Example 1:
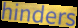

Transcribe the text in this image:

hinders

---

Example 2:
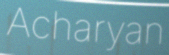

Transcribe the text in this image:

Acharyan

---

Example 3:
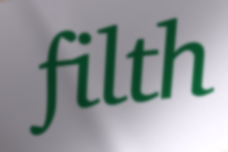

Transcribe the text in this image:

filth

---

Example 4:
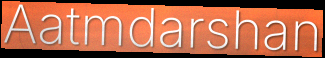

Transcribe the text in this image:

Aatmdarshan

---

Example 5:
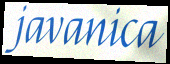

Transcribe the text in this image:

javanica